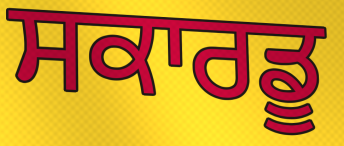
ਸਕਾਰਡੂ